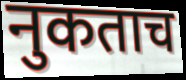
नुकताच